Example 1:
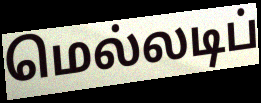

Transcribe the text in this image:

மெல்லடிப்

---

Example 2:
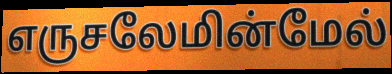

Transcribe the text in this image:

எருசலேமின்மேல்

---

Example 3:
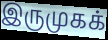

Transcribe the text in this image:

இருமுகக்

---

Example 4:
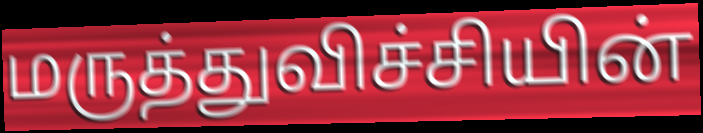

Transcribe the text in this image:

மருத்துவிச்சியின்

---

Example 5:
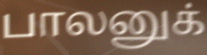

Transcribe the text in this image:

பாலனுக்